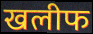
खलीफ